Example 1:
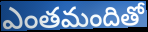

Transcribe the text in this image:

ఎంతమందితో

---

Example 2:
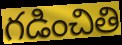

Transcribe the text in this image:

గడించితి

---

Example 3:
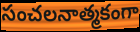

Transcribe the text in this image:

సంచలనాత్మకంగా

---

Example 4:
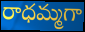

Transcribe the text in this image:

రాధమ్మగా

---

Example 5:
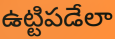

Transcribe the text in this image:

ఉట్టిపడేలా